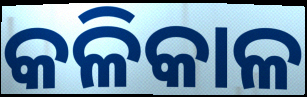
କଳିକାଳ